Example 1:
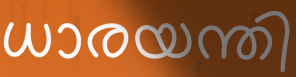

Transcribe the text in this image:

ധാരയന്തി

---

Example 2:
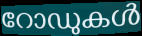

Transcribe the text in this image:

റോഡുകൾ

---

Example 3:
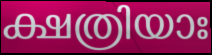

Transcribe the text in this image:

ക്ഷത്രിയാഃ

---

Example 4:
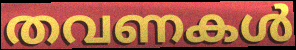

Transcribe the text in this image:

തവണകൾ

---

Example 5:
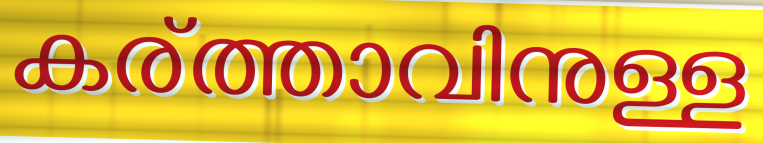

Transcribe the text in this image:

കര്ത്താവിനുള്ള